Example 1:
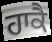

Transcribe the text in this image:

ਹਾਕੈ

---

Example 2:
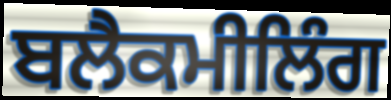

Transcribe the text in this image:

ਬਲੈਕਮੀਲਿੰਗ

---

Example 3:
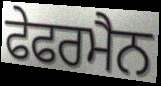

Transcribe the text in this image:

ਫੇਫਰਮੈਨ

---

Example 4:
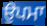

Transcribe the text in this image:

ਉਪਮਾ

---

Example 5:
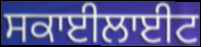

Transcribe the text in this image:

ਸਕਾਈਲਾਈਟ